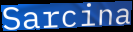
Sarcina